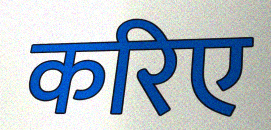
करिए